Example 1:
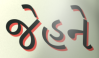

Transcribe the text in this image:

જેહને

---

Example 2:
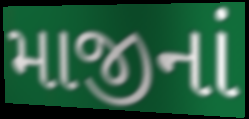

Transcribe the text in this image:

માજીનાં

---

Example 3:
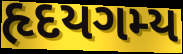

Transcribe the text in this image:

હૃદયગમ્ય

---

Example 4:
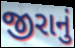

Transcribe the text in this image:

જીરાનું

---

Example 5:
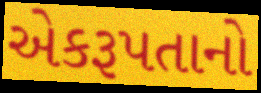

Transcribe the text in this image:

એકરૂપતાનો